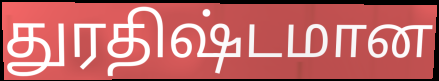
துரதிஷ்டமான